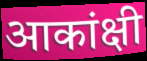
आकांक्षी